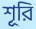
শূরি